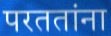
परततांना